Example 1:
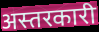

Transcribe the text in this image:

अस्तरकारी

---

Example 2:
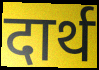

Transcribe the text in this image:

दार्थ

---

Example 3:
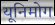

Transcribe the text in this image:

यूनिमोग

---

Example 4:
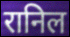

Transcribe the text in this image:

रानिल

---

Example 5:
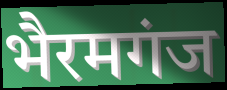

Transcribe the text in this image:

भैरमगंज